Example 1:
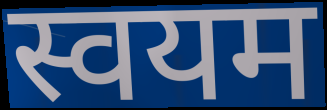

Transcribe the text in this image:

स्वयम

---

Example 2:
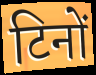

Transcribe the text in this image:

टिनों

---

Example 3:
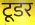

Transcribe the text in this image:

टूडर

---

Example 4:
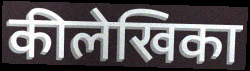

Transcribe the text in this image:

कीलेखिका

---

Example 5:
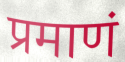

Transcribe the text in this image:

प्रमाणं